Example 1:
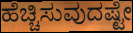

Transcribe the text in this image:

ಹೆಚ್ಚಿಸುವುದಷ್ಟೇ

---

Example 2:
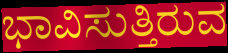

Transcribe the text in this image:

ಭಾವಿಸುತ್ತಿರುವ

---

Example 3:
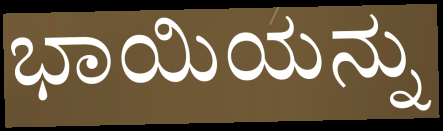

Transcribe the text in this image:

ಭಾಯಿಯನ್ನು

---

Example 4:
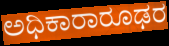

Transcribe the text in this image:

ಅಧಿಕಾರಾರೂಢರ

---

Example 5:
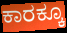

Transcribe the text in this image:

ಕಾರಕ್ಕೂ